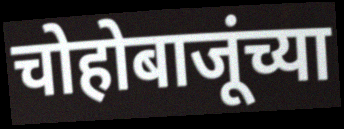
चोहोबाजूंच्या